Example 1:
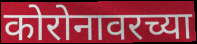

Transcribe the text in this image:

कोरोनावरच्या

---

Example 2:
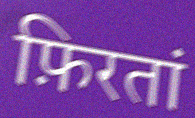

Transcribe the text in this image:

फ़िरतां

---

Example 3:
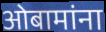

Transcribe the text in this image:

ओबामांना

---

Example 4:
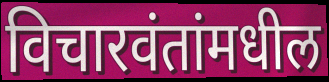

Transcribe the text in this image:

विचारवंतांमधील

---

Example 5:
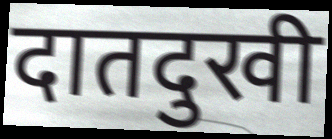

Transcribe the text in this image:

दातदुखी